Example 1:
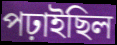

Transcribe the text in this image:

পঢ়াইছিল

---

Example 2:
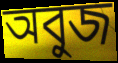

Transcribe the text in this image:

অবুজ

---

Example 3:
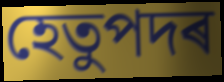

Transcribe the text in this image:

হেতুপদৰ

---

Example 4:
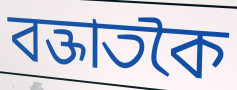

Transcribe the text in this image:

বক্তাতকৈ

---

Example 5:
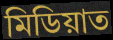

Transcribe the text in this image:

মিডিয়াত